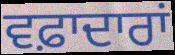
ਵਫ਼ਾਦਾਰਾਂ